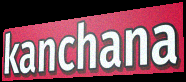
kanchana